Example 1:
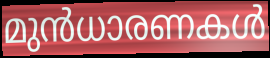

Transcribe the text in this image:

മുൻധാരണകൾ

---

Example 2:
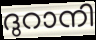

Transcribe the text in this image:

ദുറാനി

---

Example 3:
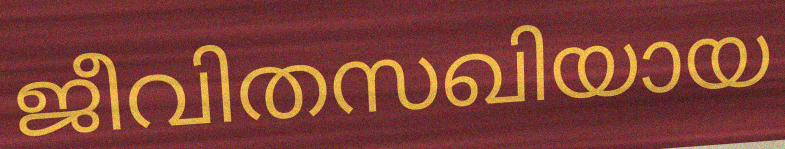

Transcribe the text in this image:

ജീവിതസഖിയായ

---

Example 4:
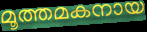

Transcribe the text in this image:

മൂത്തമകനായ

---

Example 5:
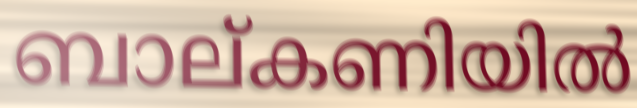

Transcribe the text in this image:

ബാല്കണിയിൽ